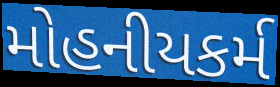
મોહનીયકર્મ